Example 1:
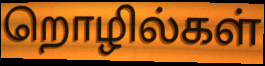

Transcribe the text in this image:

றொழில்கள்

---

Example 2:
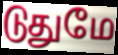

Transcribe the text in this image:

டுதுமே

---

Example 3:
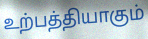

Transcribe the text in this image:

உற்பத்தியாகும்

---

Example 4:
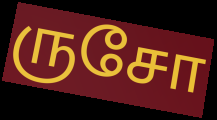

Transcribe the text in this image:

ருசோ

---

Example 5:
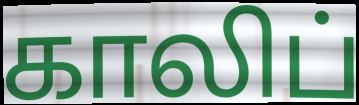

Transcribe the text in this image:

காலிப்